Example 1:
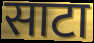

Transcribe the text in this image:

साटा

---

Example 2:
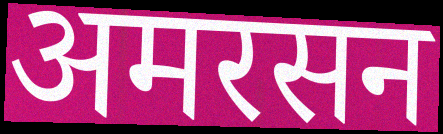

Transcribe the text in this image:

अमरसन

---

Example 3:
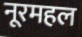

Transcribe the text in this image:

नूरमहल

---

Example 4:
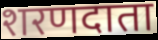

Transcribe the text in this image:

शरणदाता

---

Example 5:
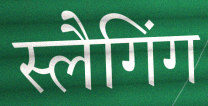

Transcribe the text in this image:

स्लैगिंग